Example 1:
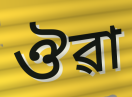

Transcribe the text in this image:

ঔৱা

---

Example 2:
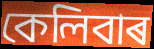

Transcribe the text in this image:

কেলিবাৰ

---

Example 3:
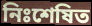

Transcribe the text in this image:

নিঃশেষিত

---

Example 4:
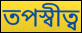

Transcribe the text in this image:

তপস্বীত্ব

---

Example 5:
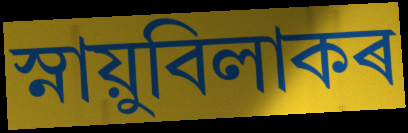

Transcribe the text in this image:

স্নায়ুবিলাকৰ